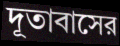
দূতাবাসের